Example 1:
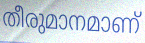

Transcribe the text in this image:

തീരുമാനമാണ്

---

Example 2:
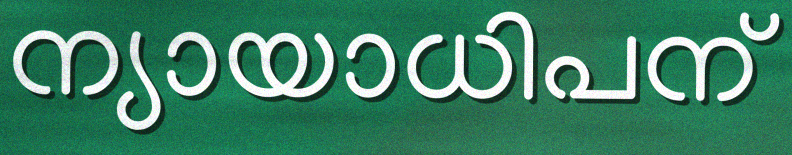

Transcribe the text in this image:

ന്യായാധിപന്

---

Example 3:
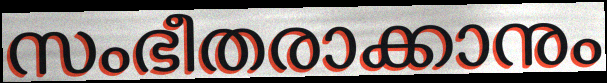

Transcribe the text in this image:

സംഭീതരാക്കാനും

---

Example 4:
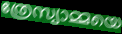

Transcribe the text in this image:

ത്രേസ്യാമ്മയെ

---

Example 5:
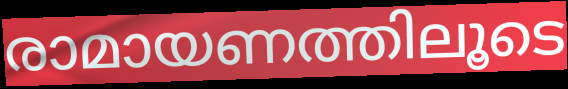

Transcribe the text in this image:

രാമായണത്തിലൂടെ